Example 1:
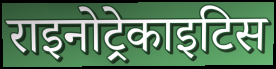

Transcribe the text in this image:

राइनोट्रेकाइटिस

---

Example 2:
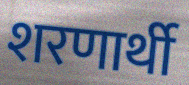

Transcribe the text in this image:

शरणार्थी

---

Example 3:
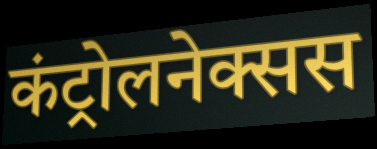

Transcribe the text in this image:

कंट्रोलनेक्सस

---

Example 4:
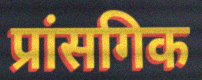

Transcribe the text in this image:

प्रांसगिक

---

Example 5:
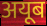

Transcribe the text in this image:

अयूब